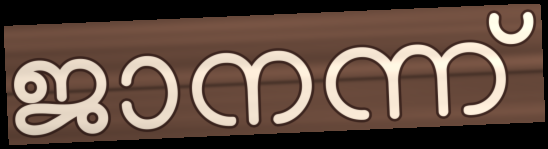
ജാനന്ന്